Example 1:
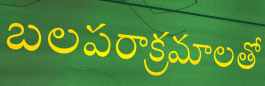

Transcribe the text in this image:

బలపరాక్రమాలతో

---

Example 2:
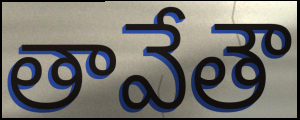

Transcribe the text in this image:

తావేతౌ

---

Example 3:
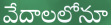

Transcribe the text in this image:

వేదాలలోనూ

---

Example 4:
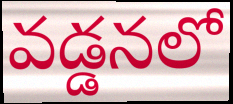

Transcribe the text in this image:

వడ్డనలో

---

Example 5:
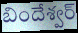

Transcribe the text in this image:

బిందేశ్వర్